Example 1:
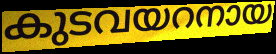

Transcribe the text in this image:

കുടവയറനായ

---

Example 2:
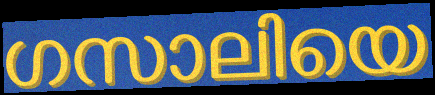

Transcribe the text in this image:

ഗസാലിയെ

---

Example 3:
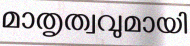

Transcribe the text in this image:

മാതൃത്വവുമായി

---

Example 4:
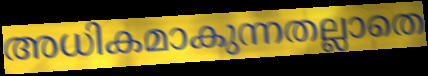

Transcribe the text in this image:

അധികമാകുന്നതല്ലാതെ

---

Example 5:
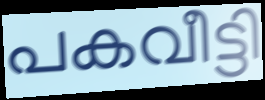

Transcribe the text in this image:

പകവീട്ടി